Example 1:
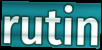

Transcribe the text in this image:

rutin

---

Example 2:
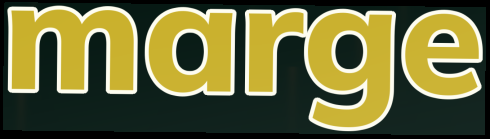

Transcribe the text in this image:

marge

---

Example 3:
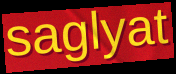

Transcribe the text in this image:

saglyat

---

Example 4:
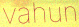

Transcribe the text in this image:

vahun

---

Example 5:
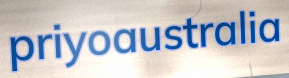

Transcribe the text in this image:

priyoaustralia